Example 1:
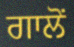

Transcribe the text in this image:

ਗਾਲੋਂ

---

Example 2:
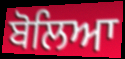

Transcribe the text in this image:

ਬੋਲਿਆ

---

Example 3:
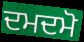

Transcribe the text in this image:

ਦਮਦਮੋ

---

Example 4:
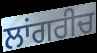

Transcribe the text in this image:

ਲਾਂਗਰੀਚ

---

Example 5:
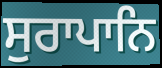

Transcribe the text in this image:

ਸੁਰਾਪਾਨਿ